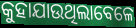
କୁହାଯାଉଥିଲାବେଳେ